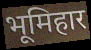
भूमिहार